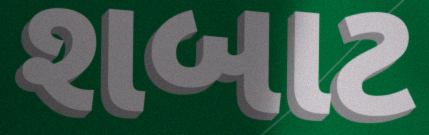
શબાટ